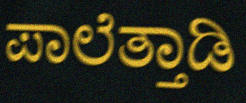
ಪಾಲೆತ್ತಾಡಿ